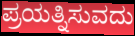
ಪ್ರಯತ್ನಿಸುವದು